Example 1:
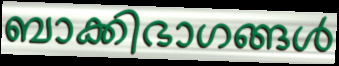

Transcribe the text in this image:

ബാക്കിഭാഗങ്ങൾ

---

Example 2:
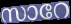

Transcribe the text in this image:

സാറേ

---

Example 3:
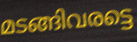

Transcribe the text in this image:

മടങ്ങിവരട്ടെ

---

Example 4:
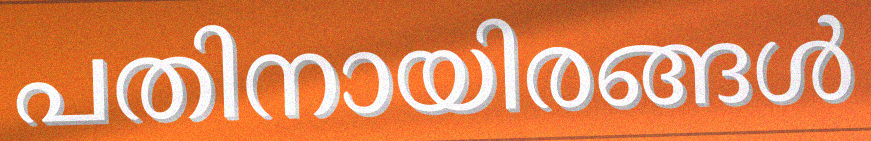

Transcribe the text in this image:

പതിനായിരങ്ങൾ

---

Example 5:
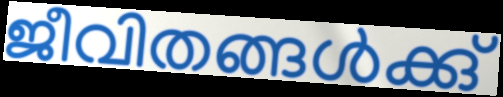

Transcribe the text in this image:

ജീവിതങ്ങൾക്കു്